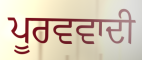
ਪੂਰਵਵਾਦੀ